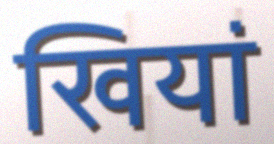
खियां